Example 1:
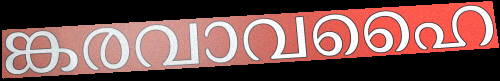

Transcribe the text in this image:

ങ്കരവാവഹൈ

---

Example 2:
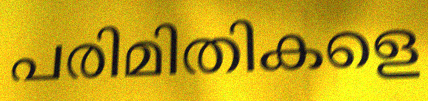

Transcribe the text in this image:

പരിമിതികളെ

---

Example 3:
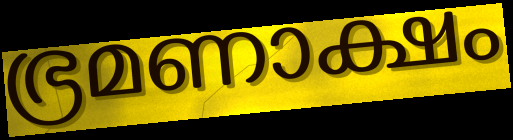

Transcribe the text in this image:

ഭ്രമണാക്ഷം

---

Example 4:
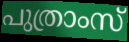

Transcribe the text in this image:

പുത്രാംസ്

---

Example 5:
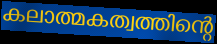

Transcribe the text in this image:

കലാത്മകത്വത്തിന്റെ